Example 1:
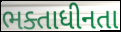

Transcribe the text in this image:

ભક્તાધીનતા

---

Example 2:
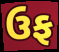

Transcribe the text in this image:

ઉફ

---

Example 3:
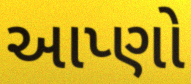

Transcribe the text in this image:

આપ્ણો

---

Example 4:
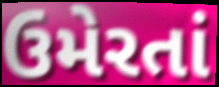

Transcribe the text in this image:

ઉમેરતાં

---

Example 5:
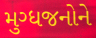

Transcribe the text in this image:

મુગ્ધજનોને